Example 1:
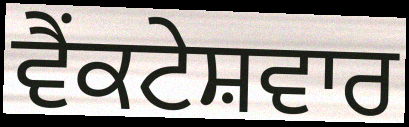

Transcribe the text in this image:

ਵੈਂਕਟੇਸ਼ਵਾਰ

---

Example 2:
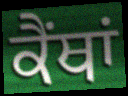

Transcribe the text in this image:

ਕੈਂਥਾਂ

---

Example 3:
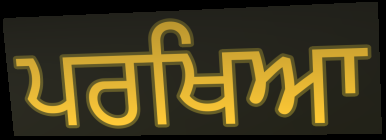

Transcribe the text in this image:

ਪਰਖਿਆ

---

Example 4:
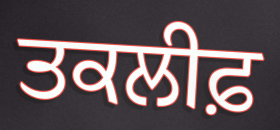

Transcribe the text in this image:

ਤਕਲੀਫ਼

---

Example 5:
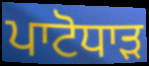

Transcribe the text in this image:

ਪਾਟੋਧਾੜ